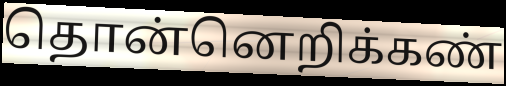
தொன்னெறிக்கண்